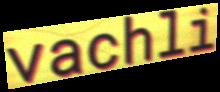
vachli